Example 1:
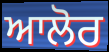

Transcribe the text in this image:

ਆਲੋਰ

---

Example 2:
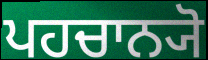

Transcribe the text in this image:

ਪਹਚਾਨ੍ਯੋ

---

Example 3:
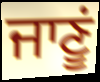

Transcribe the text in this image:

ਜਾਣੂਂ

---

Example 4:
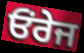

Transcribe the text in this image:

ਓਂਰੇਜ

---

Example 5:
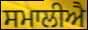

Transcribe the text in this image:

ਸਮਾਲੀਐ